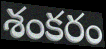
శంకరం